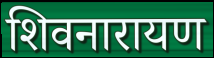
शिवनारायण